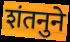
शंतनुने